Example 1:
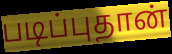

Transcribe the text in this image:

படிப்புதான்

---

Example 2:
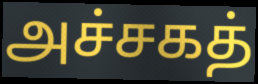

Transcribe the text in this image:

அச்சகத்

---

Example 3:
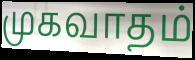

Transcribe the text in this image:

முகவாதம்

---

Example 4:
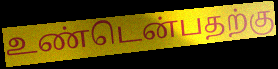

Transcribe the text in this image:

உண்டென்பதற்கு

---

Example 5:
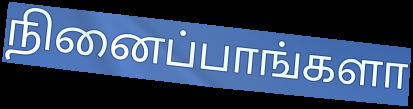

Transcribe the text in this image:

நினைப்பாங்களா